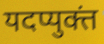
यदप्युक्तं